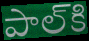
పాల్‌కి